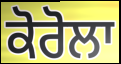
ਕੋਰੋਲਾ